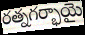
రత్నగర్భాయై